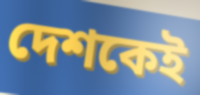
দেশকেই